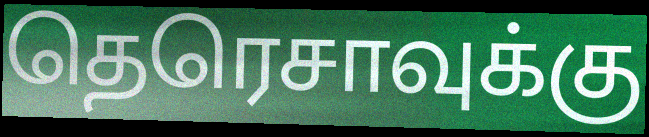
தெரெசாவுக்கு